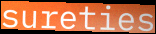
sureties